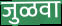
जुळवा